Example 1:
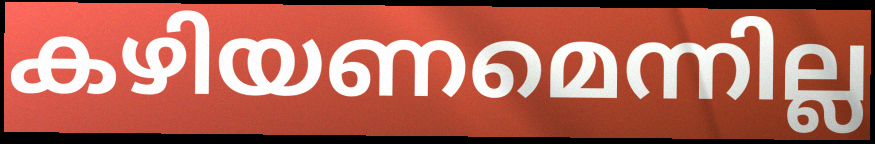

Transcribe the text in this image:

കഴിയണമെന്നില്ല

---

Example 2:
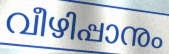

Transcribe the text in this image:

വീഴിപ്പാനും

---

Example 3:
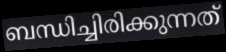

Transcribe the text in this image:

ബന്ധിച്ചിരിക്കുന്നത്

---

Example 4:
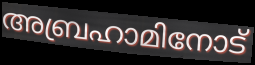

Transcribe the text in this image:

അബ്രഹാമിനോട്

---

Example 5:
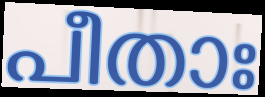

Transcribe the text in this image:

പീതാഃ